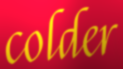
colder